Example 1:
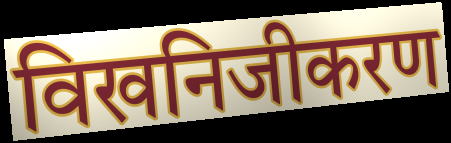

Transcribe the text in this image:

विखनिजीकरण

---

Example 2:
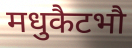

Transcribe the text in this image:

मधुकैटभौ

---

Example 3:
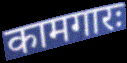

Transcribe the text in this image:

कामगारः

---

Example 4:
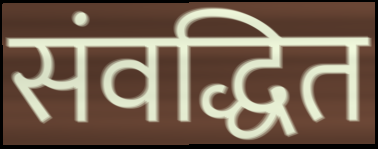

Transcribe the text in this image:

संवद्धित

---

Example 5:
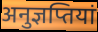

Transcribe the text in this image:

अनुज्ञप्तियां